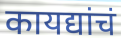
कायद्यांचं